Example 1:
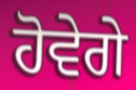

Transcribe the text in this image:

ਹੋਵੇਗੇ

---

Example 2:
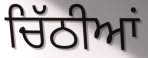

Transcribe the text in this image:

ਚਿੱਠੀਆਂ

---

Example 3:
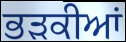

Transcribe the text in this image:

ਭੜਕੀਆਂ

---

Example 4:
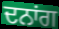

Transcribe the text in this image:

ਦਨਾਂਗ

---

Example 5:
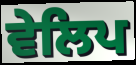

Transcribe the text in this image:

ਵੇਲਿਪ